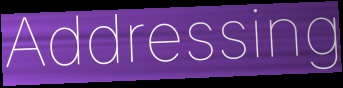
Addressing